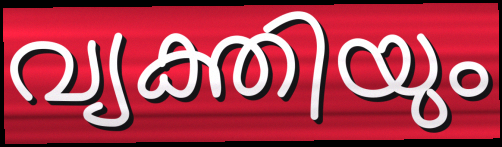
വ്യക്തിയും